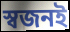
স্বজনই